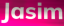
Jasim